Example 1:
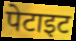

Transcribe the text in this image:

पेटाइट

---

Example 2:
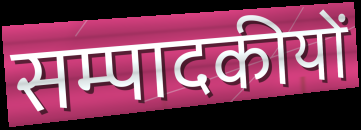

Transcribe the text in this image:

सम्पादकीयों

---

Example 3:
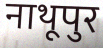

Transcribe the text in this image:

नाथूपुर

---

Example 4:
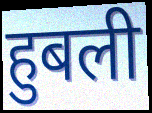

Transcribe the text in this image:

हुबली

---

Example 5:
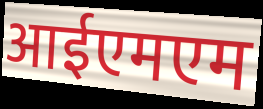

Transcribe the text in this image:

आईएमएम